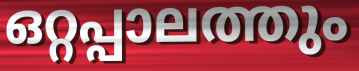
ഒറ്റപ്പാലത്തും